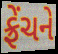
ફ્રેંચને